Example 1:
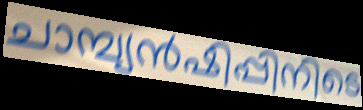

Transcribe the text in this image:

ചാമ്പ്യൻഷിപ്പിനിടെ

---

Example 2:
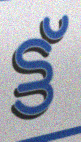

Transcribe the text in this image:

ട്ട്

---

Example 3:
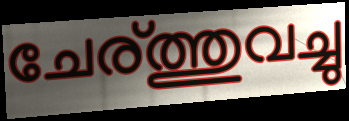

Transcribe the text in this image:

ചേര്ത്തുവച്ചു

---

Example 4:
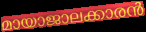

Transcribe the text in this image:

മായാജാലക്കാരൻ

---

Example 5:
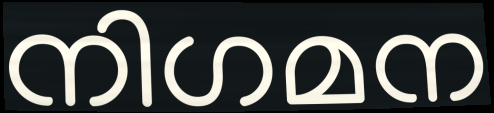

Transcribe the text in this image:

നിഗമന